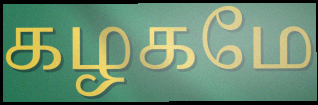
கழகமே